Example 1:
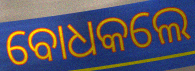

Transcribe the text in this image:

ବୋଧକଲେ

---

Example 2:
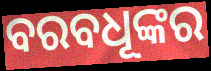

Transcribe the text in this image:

ବରବଧୂଙ୍କର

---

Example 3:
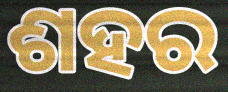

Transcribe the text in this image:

ଶହର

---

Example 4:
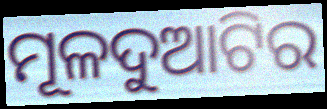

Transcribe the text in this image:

ମୂଳଦୁଆଟିର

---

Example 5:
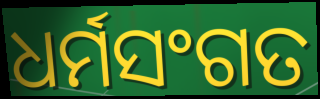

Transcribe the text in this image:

ଧର୍ମସଂଗତ